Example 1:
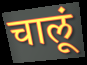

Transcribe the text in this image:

चालूं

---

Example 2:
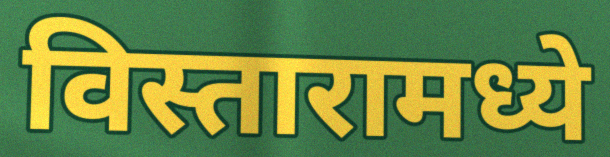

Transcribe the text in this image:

विस्तारामध्ये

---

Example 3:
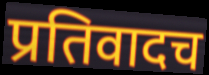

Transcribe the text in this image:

प्रतिवादच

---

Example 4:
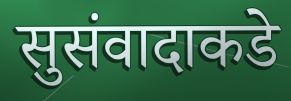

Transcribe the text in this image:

सुसंवादाकडे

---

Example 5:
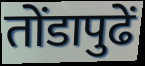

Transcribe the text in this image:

तोंडापुढें